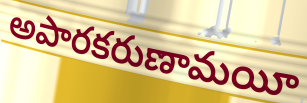
అపారకరుణామయీ